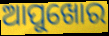
ଆପୁଖୋର